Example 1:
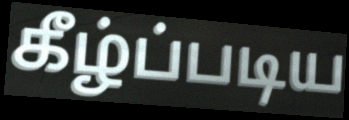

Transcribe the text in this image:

கீழ்ப்படிய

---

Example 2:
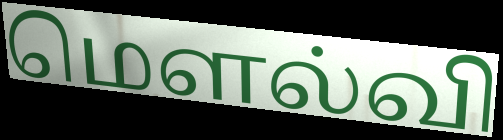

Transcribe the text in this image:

மௌல்வி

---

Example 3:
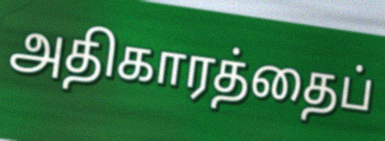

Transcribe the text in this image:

அதிகாரத்தைப்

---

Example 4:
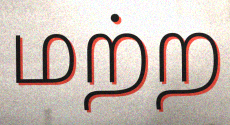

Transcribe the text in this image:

மற்ற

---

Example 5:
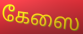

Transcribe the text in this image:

கேஸை